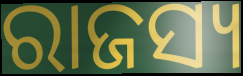
ରାଜସ୍ୟ